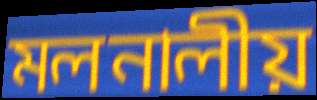
মলনালীয়